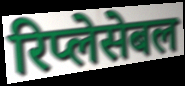
रिप्लेसेबल